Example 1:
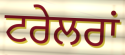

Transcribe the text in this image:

ਟਰੇਲਰਾਂ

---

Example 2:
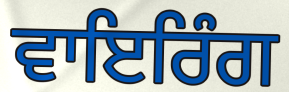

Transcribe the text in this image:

ਵਾਇਰਿੰਗ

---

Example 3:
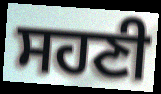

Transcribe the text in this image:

ਸਹਣੀ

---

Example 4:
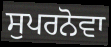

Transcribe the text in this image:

ਸੁਪਰਨੋਵਾ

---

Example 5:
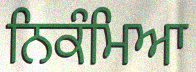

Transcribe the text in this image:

ਨਿਕੰਮਿਆ